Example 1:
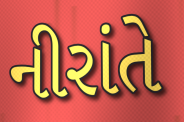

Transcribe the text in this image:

નીરાંતે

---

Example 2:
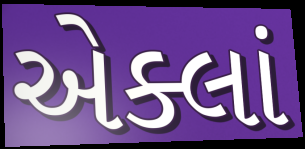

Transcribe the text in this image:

એક્લાં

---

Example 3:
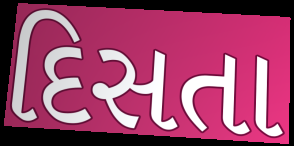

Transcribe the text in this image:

દિસતા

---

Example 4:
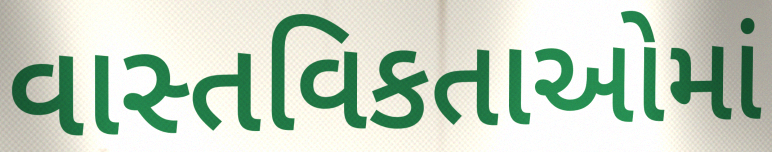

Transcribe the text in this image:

વાસ્તવિકતાઓમાં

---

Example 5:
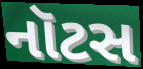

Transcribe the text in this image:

નૉટસ